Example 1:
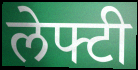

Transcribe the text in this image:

लेफ्टी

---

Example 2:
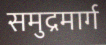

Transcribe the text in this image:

समुद्रमार्ग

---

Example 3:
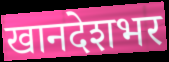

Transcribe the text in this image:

खानदेशभर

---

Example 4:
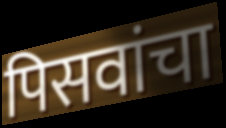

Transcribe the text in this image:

पिसवांचा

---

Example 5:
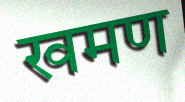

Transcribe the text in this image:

खमण